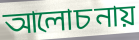
আলোচনায়